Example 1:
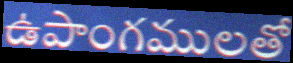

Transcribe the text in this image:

ఉపాంగములతో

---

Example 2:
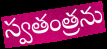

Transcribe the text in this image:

స్వతంత్రను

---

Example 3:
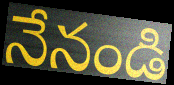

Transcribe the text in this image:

నేనండి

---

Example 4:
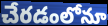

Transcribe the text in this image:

చేరడంలోనూ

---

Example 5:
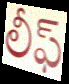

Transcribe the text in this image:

లీఫ్